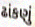
ઢાંકણું